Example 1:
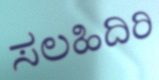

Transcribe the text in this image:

ಸಲಹಿದಿರಿ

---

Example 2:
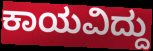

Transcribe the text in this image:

ಕಾಯವಿದ್ದು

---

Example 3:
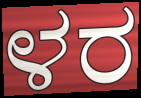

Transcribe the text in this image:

ಳರ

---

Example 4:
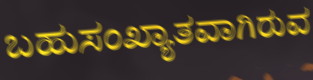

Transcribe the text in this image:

ಬಹುಸಂಖ್ಯಾತವಾಗಿರುವ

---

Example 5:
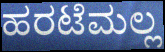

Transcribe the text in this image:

ಹರಟೆಮಲ್ಲ